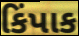
કિંપાક